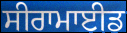
ਸੀਰਾਮਾਈਡ